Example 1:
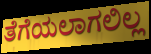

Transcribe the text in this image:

ತೆಗೆಯಲಾಗಲಿಲ್ಲ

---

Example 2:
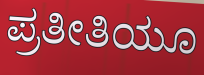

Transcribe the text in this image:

ಪ್ರತೀತಿಯೂ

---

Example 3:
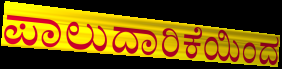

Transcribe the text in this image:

ಪಾಲುದಾರಿಕೆಯಿಂದ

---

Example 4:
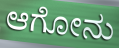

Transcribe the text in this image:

ಆಗೋನು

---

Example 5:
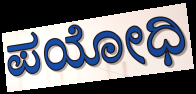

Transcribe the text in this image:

ಪಯೋಧಿ